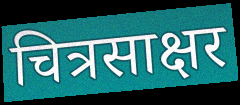
चित्रसाक्षर